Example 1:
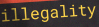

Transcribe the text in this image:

illegality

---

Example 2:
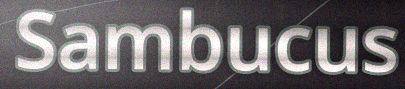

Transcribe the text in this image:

Sambucus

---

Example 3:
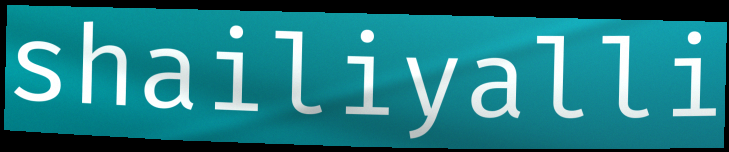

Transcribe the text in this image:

shailiyalli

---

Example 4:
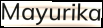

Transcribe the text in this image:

Mayurika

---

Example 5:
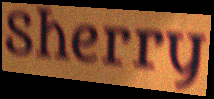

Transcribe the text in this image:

Sherry